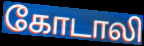
கோடாலி